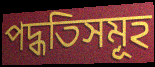
পদ্ধতিসমূহ